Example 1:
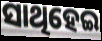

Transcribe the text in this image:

ସାଥିହେଇ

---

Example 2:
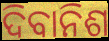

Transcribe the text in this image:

ଦିବାନିଶ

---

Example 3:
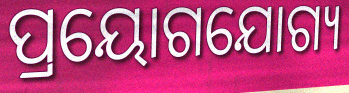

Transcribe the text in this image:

ପ୍ରୟୋଗଯୋଗ୍ୟ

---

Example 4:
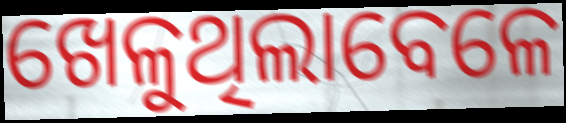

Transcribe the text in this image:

ଖେଳୁଥିଲାବେଳେ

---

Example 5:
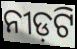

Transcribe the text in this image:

ନୀଡ଼ଟି